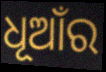
ଧୂଆଁର